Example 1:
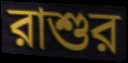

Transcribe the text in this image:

রাশুর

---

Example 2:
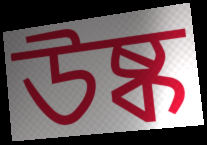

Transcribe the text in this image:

উষ্ক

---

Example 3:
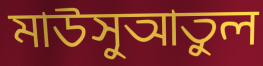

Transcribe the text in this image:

মাউসুআতুল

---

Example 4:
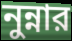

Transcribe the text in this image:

নুন্নার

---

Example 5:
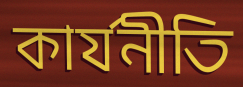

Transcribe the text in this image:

কার্যনীতি